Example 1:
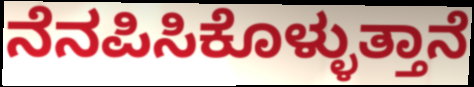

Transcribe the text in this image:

ನೆನಪಿಸಿಕೊಳ್ಳುತ್ತಾನೆ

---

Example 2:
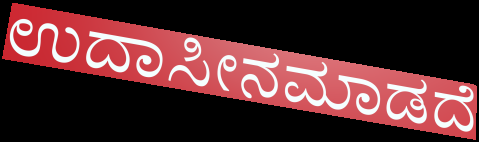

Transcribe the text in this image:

ಉದಾಸೀನಮಾಡದೆ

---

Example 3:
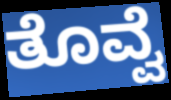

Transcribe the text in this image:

ತೊವ್ವೆ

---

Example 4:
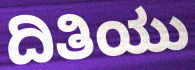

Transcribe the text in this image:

ದಿತಿಯು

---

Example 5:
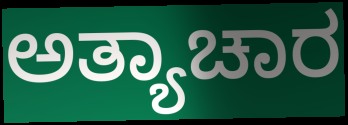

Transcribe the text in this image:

ಅತ್ಯಾಚಾರ